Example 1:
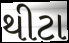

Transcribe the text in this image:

થીટા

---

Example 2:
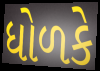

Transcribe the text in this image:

ધોળકે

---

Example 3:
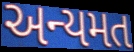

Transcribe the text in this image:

અન્યમત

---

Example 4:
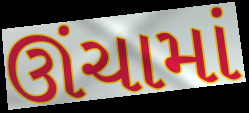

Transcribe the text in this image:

ઊંચામાં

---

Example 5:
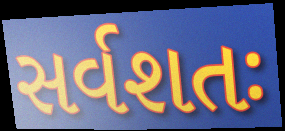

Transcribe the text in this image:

સર્વશતઃ